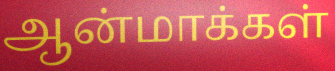
ஆன்மாக்கள்